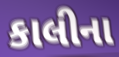
કાલીના